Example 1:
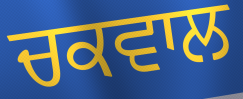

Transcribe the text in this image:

ਚਕਵਾਲ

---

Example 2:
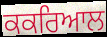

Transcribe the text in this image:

ਕਕਰਿਆਲ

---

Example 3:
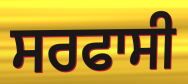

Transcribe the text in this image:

ਸਰਫਾਸੀ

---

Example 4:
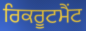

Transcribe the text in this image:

ਰਿਕਰੂਟਮੈਂਟ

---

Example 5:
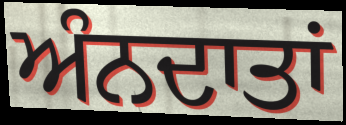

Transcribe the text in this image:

ਅੰਨਦਾਤਾਂ